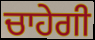
ਚਾਹੇਗੀ